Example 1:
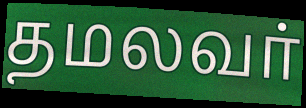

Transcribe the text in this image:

தமலவர்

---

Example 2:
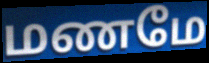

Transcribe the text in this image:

மணமே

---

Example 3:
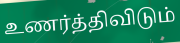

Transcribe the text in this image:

உணர்த்திவிடும்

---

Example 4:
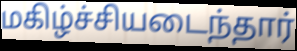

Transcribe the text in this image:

மகிழ்ச்சியடைந்தார்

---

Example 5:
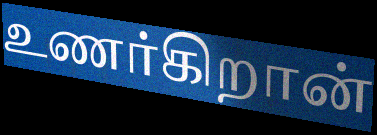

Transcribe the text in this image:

உணர்கிறான்